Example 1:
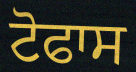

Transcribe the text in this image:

ਟੋਫਾਸ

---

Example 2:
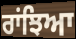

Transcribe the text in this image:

ਰਾਂਝਿਆ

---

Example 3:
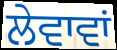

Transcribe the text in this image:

ਲੇਵਾਵਾਂ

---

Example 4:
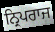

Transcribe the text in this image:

ਨ੍ਰਿਪਰਾਜ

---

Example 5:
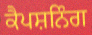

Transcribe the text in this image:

ਕੈਪਸ਼ਨਿੰਗ